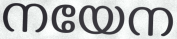
നയേന